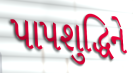
પાપશુદ્ધિને